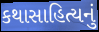
કથાસાહિત્યનું